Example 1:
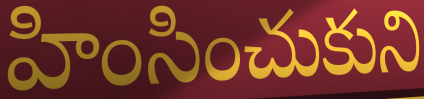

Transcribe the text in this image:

హింసించుకుని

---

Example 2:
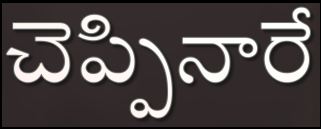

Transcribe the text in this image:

చెప్పినారే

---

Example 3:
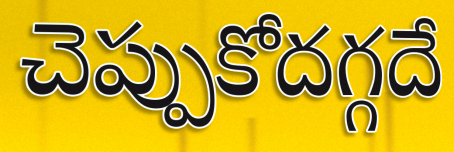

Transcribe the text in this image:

చెప్పుకోదగ్గదే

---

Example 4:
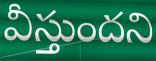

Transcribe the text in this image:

వీస్తుందని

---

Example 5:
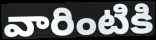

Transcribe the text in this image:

వారింటికి